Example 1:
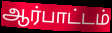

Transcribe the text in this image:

ஆர்பாட்டம்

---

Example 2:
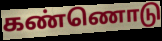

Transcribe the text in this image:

கண்ணொடு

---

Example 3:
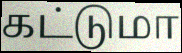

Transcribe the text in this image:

கட்டுமா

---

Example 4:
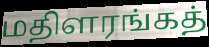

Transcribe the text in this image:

மதிளரங்கத்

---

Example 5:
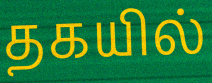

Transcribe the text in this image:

தகயில்